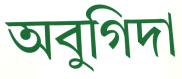
অবুগিদা